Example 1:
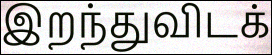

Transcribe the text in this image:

இறந்துவிடக்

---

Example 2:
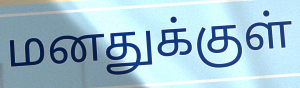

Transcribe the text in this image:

மனதுக்குள்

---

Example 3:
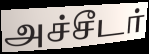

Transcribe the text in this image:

அச்சீடர்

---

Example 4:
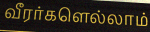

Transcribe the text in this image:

வீரர்களெல்லாம்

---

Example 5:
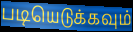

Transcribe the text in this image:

படியெடுக்கவும்